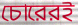
চোরেরই